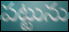
పట్టును